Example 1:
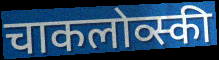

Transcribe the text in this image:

चाकलोव्स्की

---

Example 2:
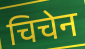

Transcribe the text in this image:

चिचेन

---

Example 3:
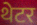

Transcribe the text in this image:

थेटर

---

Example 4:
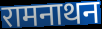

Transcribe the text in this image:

रामनाथन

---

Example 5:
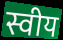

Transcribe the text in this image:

स्वीय